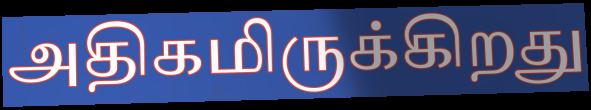
அதிகமிருக்கிறது